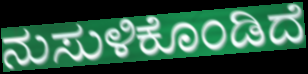
ನುಸುಳಿಕೊಂಡಿದೆ